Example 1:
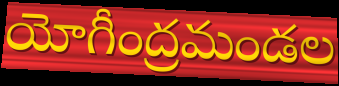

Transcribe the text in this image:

యోగీంద్రమండల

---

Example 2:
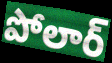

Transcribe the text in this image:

పోలార్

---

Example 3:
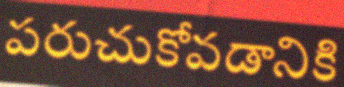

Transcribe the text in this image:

పరుచుకోవడానికి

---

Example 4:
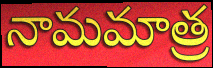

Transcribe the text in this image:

నామమాత్ర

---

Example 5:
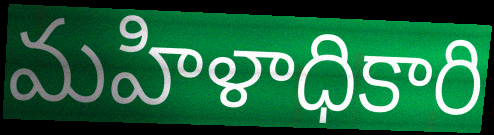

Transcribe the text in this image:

మహిళాధికారి